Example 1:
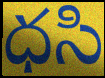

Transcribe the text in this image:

ధసి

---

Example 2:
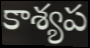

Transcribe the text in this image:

కాశ్యప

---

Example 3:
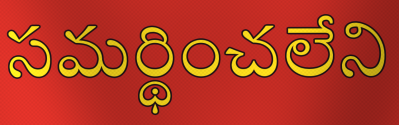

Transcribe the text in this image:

సమర్థించలేని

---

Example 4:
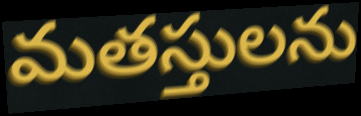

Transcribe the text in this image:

మతస్తులను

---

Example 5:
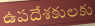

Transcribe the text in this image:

ఉపదేశకులకు